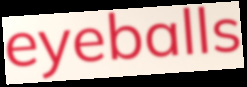
eyeballs